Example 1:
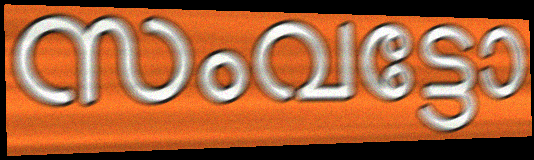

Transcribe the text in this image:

സംവട്ടോ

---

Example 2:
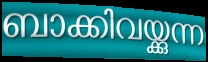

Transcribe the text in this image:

ബാക്കിവയ്ക്കുന്ന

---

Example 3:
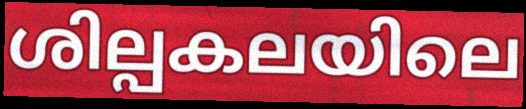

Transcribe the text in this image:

ശില്പകലയിലെ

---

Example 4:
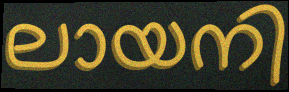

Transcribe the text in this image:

ലായനി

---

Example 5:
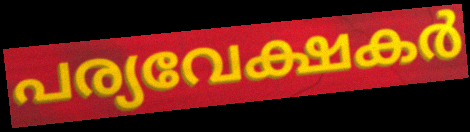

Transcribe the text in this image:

പര്യവേക്ഷകർ